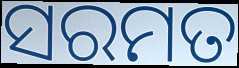
ସରମତ